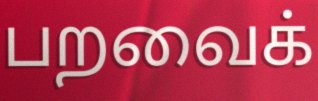
பறவைக்